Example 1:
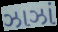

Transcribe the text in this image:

ઝાઝાં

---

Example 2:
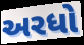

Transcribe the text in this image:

અરધો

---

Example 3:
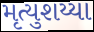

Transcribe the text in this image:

મૃત્યુશય્યા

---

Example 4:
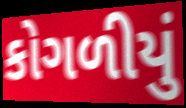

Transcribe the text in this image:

કોગળીયું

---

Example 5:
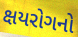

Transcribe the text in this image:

ક્ષયરોગનો